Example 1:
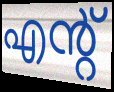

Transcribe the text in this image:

എന്റ്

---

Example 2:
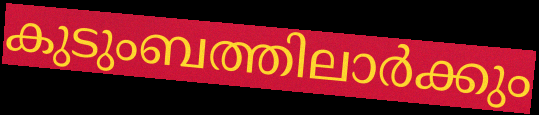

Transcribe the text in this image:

കുടുംബത്തിലാർക്കും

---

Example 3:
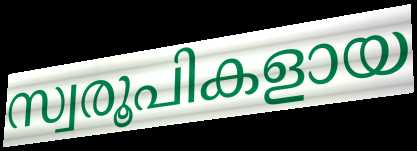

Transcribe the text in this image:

സ്വരൂപികളായ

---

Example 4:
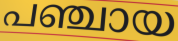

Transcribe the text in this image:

പഞ്ചായ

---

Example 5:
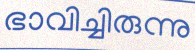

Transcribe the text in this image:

ഭാവിച്ചിരുന്നു